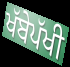
ਖੱਬੇਪੱਖੀ